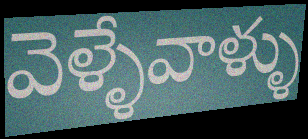
వెళ్ళేవాళ్ళు